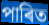
পাৰিত